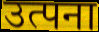
उत्पना